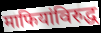
माफियांविरुद्ध